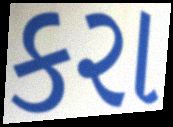
કરા